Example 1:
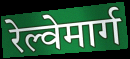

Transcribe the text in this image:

रेल्वेमार्ग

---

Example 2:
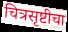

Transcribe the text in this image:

चित्रसृष्टीचा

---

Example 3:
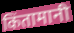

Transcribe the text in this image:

किंतामानी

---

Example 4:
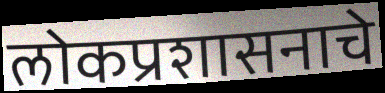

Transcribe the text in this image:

लोकप्रशासनाचे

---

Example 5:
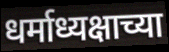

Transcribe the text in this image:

धर्माध्यक्षाच्या